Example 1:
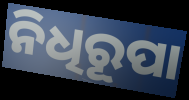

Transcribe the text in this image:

ନିଧିରୂପା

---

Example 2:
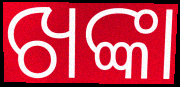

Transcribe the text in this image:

ଖଙ୍କା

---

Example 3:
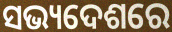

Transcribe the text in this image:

ସଭ୍ୟଦେଶରେ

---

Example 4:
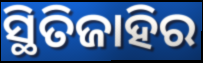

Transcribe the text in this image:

ସ୍ଥିତିଜାହିର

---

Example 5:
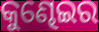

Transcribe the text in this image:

କୁଣ୍ଢେଇର